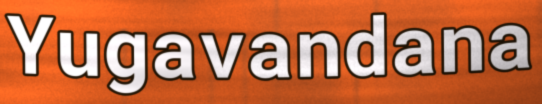
Yugavandana